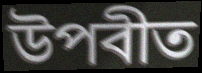
উপবীত